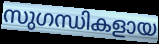
സുഗന്ധികളായ